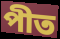
পীত